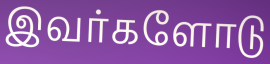
இவர்களோடு